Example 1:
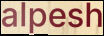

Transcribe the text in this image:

alpesh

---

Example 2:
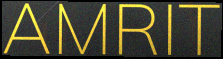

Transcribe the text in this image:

AMRIT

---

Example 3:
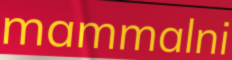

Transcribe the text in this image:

mammalni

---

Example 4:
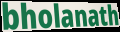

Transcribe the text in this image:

bholanath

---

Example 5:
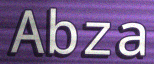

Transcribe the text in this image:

Abza